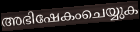
അഭിഷേകംചെയ്യുക